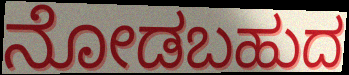
ನೋಡಬಹುದ